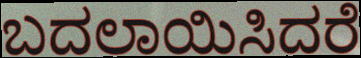
ಬದಲಾಯಿಸಿದರೆ